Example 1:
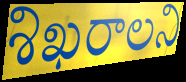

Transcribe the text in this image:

శిఖరాలని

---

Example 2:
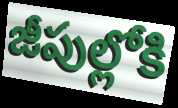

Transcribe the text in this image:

జీపుల్లోకి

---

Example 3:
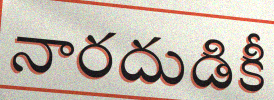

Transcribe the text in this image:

నారదుడికీ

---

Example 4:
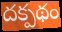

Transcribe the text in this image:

దక్పథం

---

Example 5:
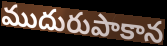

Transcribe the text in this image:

ముదురుపాకాన